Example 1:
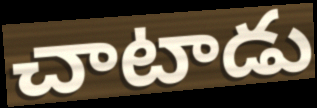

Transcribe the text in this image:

చాటాడు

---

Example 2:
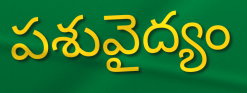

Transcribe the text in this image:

పశువైద్యం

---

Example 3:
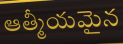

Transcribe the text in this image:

ఆత్మీయమైన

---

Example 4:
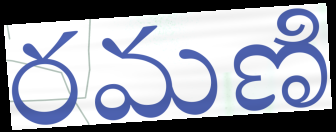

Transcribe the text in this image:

రమణి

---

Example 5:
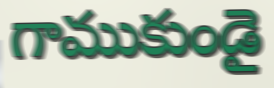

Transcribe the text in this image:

గాముకుండై